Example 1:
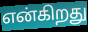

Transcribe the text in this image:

என்கிறது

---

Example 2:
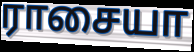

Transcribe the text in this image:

ராசையா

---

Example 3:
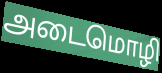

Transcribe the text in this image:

அடைமொழி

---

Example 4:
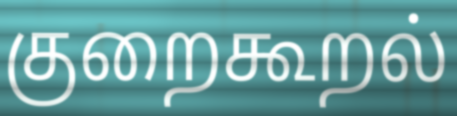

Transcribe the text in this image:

குறைகூறல்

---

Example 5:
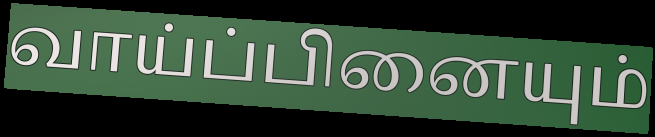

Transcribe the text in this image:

வாய்ப்பினையும்